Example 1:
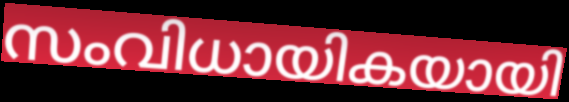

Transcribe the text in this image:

സംവിധായികയായി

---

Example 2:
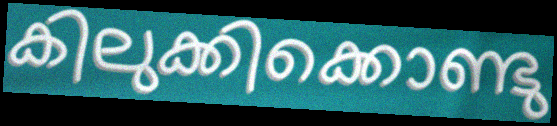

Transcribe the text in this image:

കിലുക്കിക്കൊണ്ടു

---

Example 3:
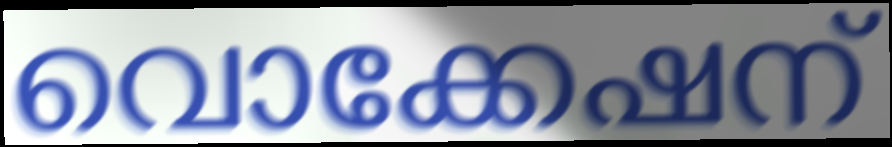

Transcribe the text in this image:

വൊക്കേഷന്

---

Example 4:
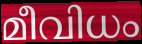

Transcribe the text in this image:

മീവിധം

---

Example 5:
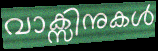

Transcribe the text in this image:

വാക്സിനുകൾ